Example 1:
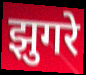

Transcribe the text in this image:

झुगरे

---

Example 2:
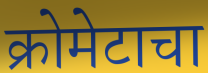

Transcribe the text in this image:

क्रोमेटाचा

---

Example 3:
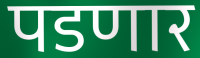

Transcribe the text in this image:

पडणार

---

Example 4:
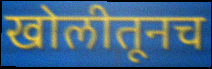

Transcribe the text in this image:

खोलीतूनच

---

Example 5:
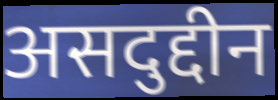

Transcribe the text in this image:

असदुद्दीन